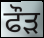
ਫੌਡ਼